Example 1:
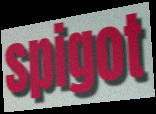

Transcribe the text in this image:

spigot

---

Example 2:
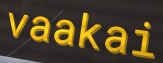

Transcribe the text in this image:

vaakai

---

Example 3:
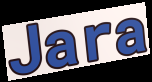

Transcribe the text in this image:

Jara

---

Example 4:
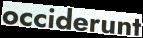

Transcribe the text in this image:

occiderunt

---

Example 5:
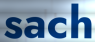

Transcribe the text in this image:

sach